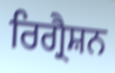
ਰਿਗ੍ਰੈਸ਼ਨ